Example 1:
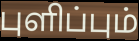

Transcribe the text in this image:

புளிப்பும்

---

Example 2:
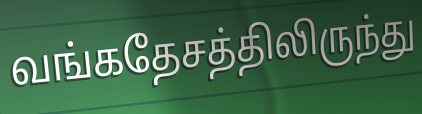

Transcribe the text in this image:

வங்கதேசத்திலிருந்து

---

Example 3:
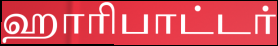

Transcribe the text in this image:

ஹாரிபாட்டர்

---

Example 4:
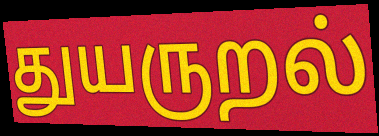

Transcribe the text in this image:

துயருறல்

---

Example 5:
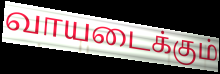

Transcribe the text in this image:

வாயடைக்கும்